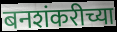
बनशंकरीच्या